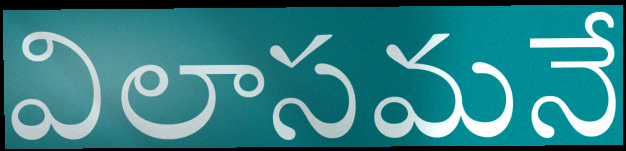
విలాసమనే